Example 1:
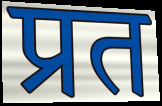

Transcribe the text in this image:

प्रत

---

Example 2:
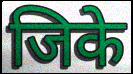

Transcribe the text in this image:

जिके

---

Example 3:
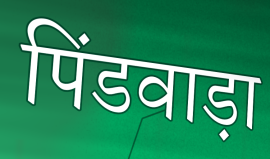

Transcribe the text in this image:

पिंडवाड़ा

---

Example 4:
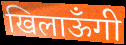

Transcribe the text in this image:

खिलाऊँगी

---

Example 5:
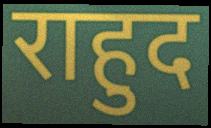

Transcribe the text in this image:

राहुद